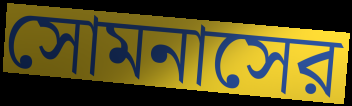
সোমনাসের